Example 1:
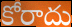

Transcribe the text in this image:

కోరాదు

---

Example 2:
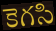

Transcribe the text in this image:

కెగసి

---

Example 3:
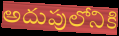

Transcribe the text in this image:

అదుపులోనికి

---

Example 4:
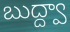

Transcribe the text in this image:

బుద్ద్వా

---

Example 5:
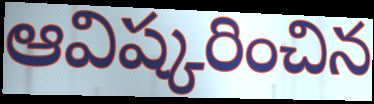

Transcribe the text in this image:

ఆవిష్కరించిన